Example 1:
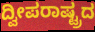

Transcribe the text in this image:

ದ್ವೀಪರಾಷ್ಟ್ರದ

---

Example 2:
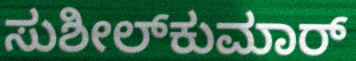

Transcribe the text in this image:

ಸುಶೀಲ್‌ಕುಮಾರ್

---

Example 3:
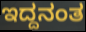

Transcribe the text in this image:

ಇದ್ದನಂತ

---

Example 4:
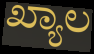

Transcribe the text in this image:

ಖ್ಯಾಲ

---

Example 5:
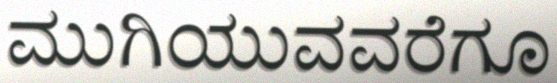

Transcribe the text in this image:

ಮುಗಿಯುವವರೆಗೂ